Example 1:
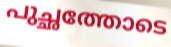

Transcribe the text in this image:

പുച്ഛത്തോടെ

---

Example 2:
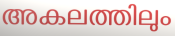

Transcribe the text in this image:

അകലത്തിലും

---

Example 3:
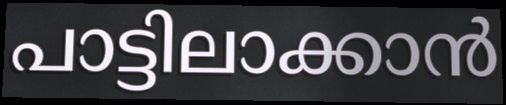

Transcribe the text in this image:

പാട്ടിലാക്കാൻ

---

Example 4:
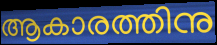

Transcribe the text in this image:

ആകാരത്തിനു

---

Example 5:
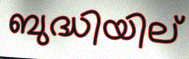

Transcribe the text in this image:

ബുദ്ധിയില്